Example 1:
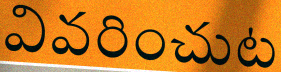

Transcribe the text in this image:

వివరించుట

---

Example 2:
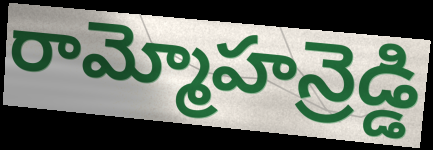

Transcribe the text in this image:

రామ్మోహన్రెడ్డి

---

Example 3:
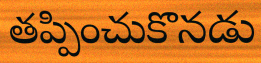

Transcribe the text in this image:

తప్పించుకొనడు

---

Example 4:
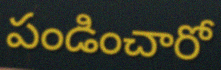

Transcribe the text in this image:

పండించారో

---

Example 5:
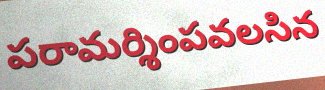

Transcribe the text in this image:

పరామర్శింపవలసిన